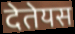
देतेयस